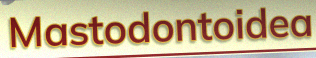
Mastodontoidea